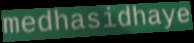
medhasidhaye